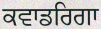
ਕਵਾਡਰਿਗਾ